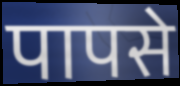
पापसे